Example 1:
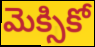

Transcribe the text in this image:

మెక్సికో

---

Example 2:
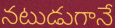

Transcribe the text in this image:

నటుడుగానే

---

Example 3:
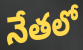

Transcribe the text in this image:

నేతలో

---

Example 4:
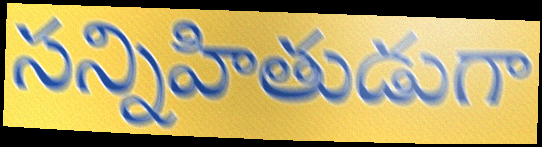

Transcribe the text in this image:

సన్నిహితుడుగా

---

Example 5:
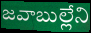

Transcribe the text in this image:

జవాబుల్లేని